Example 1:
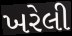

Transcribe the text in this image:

ખરેલી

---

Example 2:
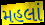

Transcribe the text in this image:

મહલાં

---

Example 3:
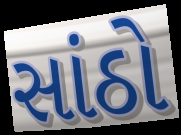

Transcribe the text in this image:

સાંઠો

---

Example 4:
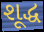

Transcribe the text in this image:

શૂદ્ધ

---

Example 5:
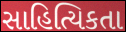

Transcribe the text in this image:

સાહિત્યિકતા